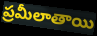
ప్రమీలాతాయి